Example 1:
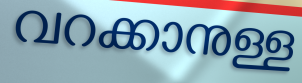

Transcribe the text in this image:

വറക്കാനുള്ള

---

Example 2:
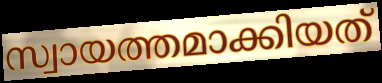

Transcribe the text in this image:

സ്വായത്തമാക്കിയത്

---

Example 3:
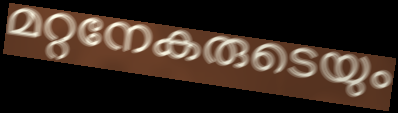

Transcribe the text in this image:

മറ്റനേകരുടെയും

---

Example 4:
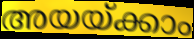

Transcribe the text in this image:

അയയ്ക്കാം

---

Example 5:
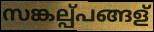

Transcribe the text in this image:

സങ്കല്പ്പങ്ങള്